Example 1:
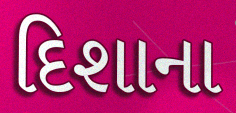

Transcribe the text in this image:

દિશાના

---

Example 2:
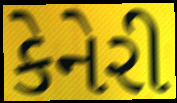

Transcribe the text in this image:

કેનેરી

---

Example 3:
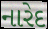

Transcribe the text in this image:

નારેદ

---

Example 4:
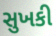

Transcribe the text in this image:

સુખકી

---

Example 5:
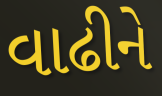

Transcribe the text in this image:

વાઢીને